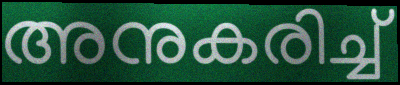
അനുകരിച്ച്